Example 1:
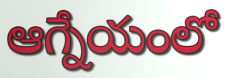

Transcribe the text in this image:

ఆగ్నేయంలో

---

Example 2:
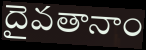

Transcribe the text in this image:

దైవతానాం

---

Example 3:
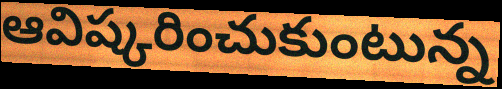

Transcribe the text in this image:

ఆవిష్కరించుకుంటున్న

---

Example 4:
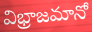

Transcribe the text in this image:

విభ్రాజమానో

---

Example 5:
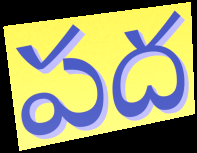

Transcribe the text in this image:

పద